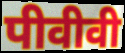
पीवीवी